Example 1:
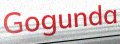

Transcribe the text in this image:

Gogunda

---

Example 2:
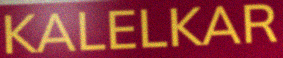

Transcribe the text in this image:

KALELKAR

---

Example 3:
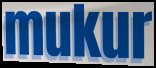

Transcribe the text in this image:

mukur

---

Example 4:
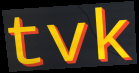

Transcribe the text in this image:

tvk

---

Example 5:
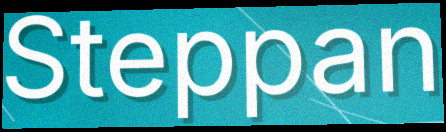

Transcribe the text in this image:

Steppan